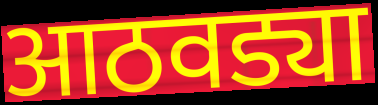
आठवड्या